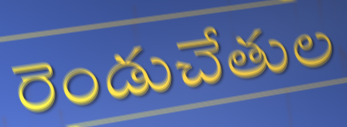
రెండుచేతుల